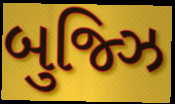
બુજ્ઝિ